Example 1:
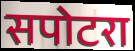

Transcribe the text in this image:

सपोटरा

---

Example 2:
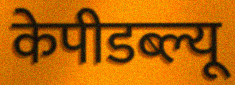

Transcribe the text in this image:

केपीडब्ल्यू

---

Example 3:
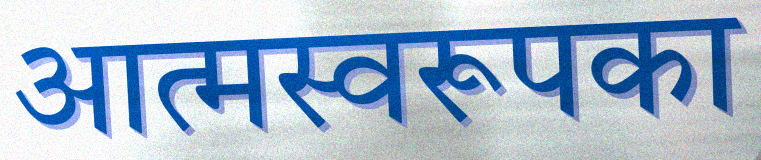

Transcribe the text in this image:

आत्मस्वरूपका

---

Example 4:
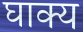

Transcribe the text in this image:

घाक्य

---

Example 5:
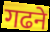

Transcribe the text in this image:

गढने